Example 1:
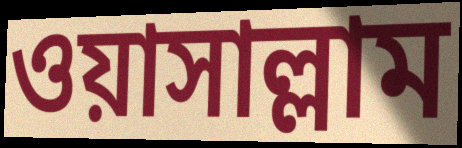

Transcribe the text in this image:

ওয়াসাল্লাম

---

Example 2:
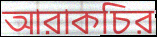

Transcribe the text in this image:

আরাকচির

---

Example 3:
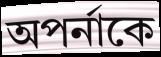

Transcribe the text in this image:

অপর্নাকে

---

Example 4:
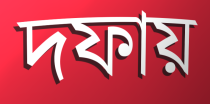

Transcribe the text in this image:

দফায়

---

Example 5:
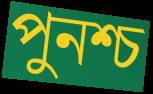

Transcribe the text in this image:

পুনশ্চ